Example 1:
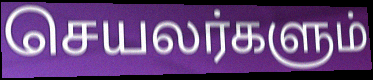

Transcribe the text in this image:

செயலர்களும்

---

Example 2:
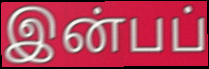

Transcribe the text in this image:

இன்பப்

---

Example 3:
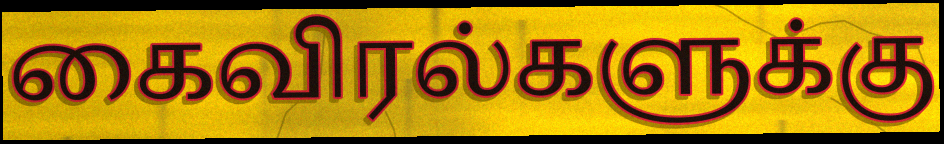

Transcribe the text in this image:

கைவிரல்களுக்கு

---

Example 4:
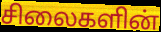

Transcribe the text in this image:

சிலைகளின்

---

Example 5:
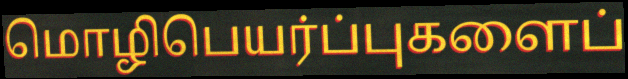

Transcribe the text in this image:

மொழிபெயர்ப்புகளைப்